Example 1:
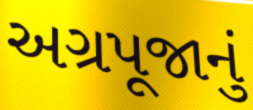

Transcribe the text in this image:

અગ્રપૂજાનું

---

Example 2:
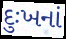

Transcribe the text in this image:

દુઃખનાં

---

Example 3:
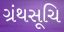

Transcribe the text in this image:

ગ્રંથસૂચિ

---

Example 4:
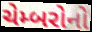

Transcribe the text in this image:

ચેમ્બરોનો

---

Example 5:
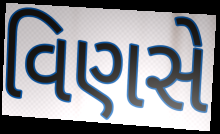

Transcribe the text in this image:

વિણસે